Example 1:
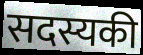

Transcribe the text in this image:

सदस्यकी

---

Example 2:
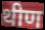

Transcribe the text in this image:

थीण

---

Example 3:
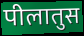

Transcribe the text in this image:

पीलातुस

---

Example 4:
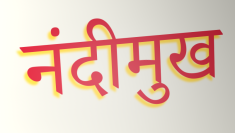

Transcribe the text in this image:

नंदीमुख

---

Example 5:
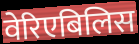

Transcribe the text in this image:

वेरिएबिलिस